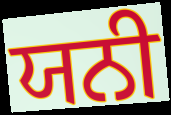
ਯਨੀ